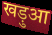
खड़ुआ